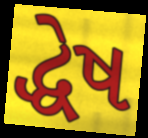
દ્ધેષ